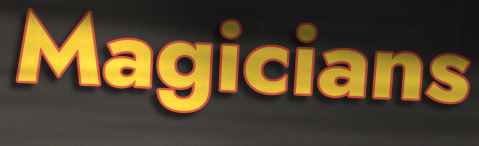
Magicians